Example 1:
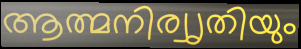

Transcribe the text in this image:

ആത്മനിര്വൃതിയും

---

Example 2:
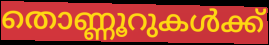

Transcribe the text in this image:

തൊണ്ണൂറുകൾക്ക്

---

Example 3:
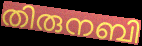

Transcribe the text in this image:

തിരുനബി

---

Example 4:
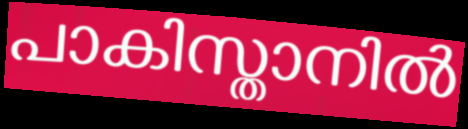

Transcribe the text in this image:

പാകിസ്താനിൽ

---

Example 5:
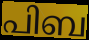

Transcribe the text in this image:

പിബ